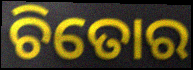
ଚିତୋର